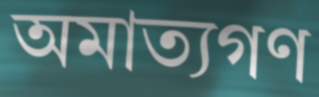
অমাত্যগণ